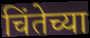
चिंतेच्या